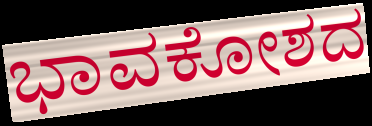
ಭಾವಕೋಶದ